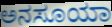
ಅನಸೂಯಾ